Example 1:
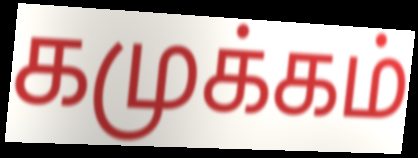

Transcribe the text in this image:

கமுக்கம்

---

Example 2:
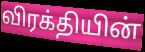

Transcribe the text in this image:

விரக்தியின்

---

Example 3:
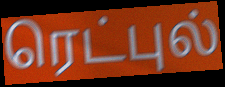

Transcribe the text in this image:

ரெட்புல்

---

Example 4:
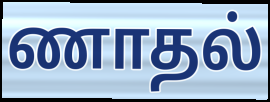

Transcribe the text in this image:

ணாதல்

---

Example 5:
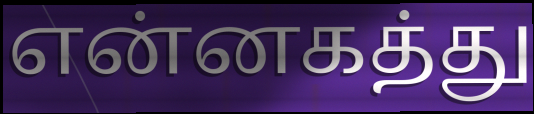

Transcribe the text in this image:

என்னகத்து